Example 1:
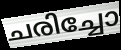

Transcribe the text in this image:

ചരിച്ചോ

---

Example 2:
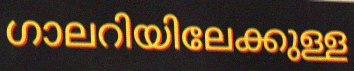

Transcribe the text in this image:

ഗാലറിയിലേക്കുള്ള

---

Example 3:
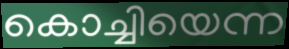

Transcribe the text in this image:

കൊച്ചിയെന്ന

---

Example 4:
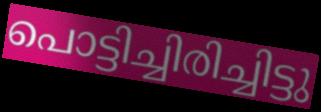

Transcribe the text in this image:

പൊട്ടിച്ചിരിച്ചിട്ടു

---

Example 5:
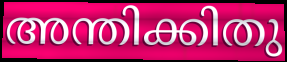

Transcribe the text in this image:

അന്തിക്കിതു